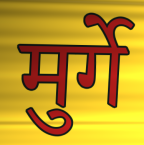
मुर्गे